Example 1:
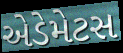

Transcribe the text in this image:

એડેમેટસ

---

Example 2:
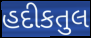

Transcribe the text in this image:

હદીકતુલ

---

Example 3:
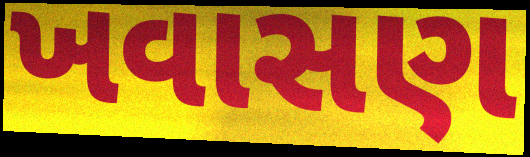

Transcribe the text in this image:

ખવાસણ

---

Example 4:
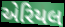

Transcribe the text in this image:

એરિયલ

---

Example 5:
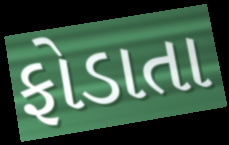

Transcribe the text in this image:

ફોડાતા